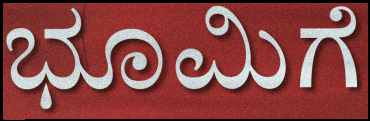
ಭೂಮಿಗೆ